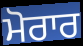
ਮੋਰਾਰ